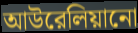
আউরেলিয়ানো